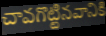
చావగొట్టినవానికి